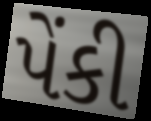
પેંકી